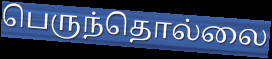
பெருந்தொல்லை